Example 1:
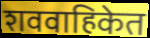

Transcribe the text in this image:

शववाहिकेत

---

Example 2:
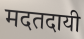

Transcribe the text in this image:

मदतदायी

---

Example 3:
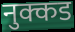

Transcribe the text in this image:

नुक्कड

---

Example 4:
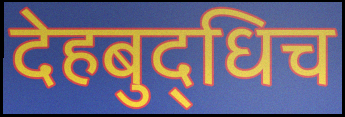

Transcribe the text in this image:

देहबुद्धिच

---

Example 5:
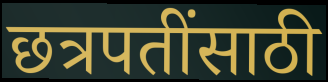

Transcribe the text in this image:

छत्रपतींसाठी